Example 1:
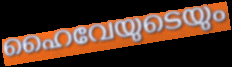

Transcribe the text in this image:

ഹൈവേയുടെയും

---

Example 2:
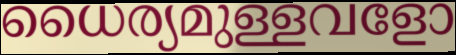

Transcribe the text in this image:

ധൈര്യമുള്ളവളോ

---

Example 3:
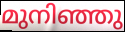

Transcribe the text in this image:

മുനിഞ്ഞു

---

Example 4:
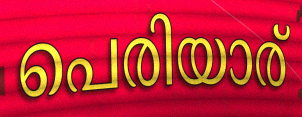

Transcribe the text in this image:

പെരിയാര്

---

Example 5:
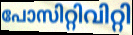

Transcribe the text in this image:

പോസിറ്റിവിറ്റി